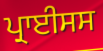
ਪ੍ਰਾਈਸਸ